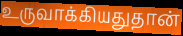
உருவாக்கியதுதான்